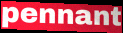
pennant